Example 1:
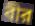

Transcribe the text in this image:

বীর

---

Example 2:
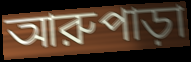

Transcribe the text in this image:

আরুপাড়া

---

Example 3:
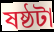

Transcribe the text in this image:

ষষ্ঠটা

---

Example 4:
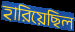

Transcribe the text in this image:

হারিয়েছিল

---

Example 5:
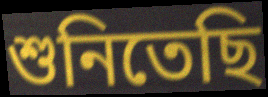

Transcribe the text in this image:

শুনিতেছি